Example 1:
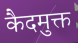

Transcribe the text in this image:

कैदमुक्त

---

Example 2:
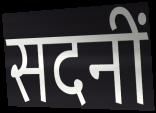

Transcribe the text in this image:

सदनीं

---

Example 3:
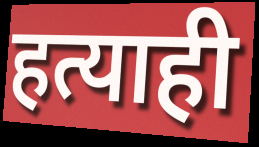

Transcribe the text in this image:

हत्याही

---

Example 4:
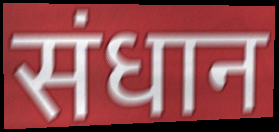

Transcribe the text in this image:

संधान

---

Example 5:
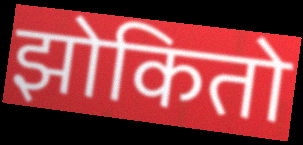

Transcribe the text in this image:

झोकितो